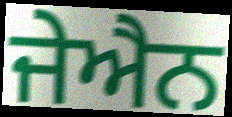
ਜੇਐਨ